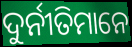
ଦୁର୍ନୀତିମାନେ